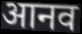
आनव